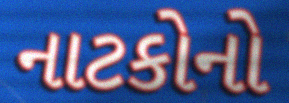
નાટકોનો